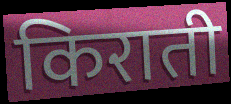
किराती